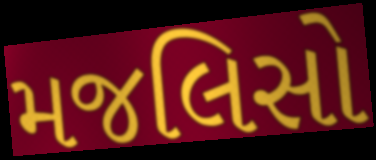
મજલિસો